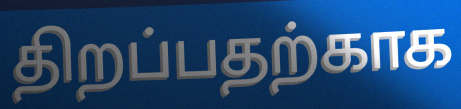
திறப்பதற்காக